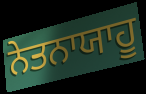
ਨੇਤਨਾਯਾਹੂ